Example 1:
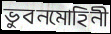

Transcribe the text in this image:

ভুবনমোহিনী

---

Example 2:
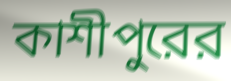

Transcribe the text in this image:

কাশীপুরের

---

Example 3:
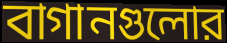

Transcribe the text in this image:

বাগানগুলোর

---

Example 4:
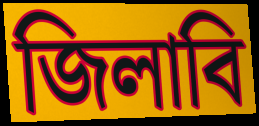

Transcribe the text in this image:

জিলাবি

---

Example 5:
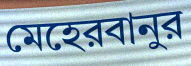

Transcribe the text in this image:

মেহেরবানুর